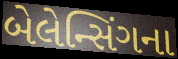
બેલેન્સિંગના